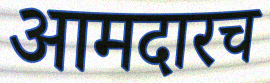
आमदारच